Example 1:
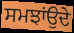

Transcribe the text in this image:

ਸਮਝਾਂਉਦੇ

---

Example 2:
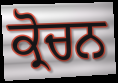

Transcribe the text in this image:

ਕ੍ਰੋਚਨ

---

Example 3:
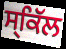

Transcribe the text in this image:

ਸ੍ਕਿੱਲ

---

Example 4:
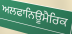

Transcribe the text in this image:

ਅਲਫਾਨਿਊਮੈਰਿਕ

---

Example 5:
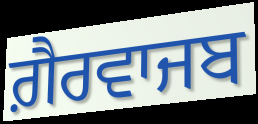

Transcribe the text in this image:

ਗ਼ੈਰਵਾਜਬ